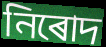
নিৰোদ